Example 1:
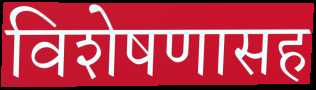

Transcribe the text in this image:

विशेषणासह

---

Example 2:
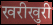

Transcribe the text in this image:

खरीखुरी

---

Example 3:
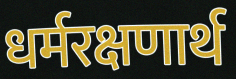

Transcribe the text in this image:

धर्मरक्षणार्थ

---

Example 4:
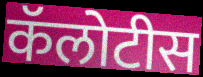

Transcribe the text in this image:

कॅलोटीस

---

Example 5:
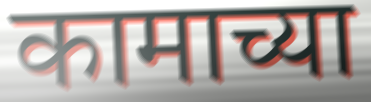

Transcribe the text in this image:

कामाच्या